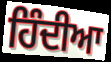
ਹਿੰਦੀਆ